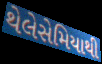
થેલેસેમિયાથી